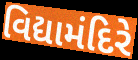
વિદ્યામંદિરે